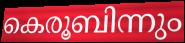
കെരൂബിന്നും